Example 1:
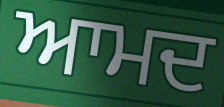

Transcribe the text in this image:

ਆਮਦ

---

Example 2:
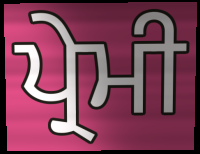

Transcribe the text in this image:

ਪ੍ਰੇਮੀ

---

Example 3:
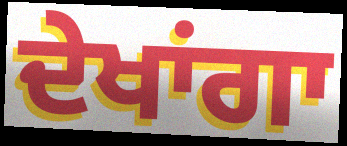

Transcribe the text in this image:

ਦੇਖਾਂਗਾ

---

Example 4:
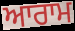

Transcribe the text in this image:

ਆਰਾਮ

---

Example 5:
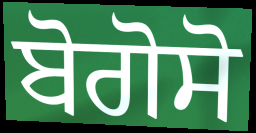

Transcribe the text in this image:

ਬੋਗੋਸੋ